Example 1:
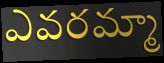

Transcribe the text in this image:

ఎవరమ్మా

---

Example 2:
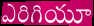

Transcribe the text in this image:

ఎరిగియూ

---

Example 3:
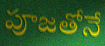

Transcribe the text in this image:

పూజతోనే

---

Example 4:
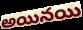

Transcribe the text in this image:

అయినయి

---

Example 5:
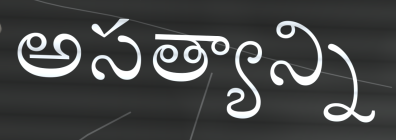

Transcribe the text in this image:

అసత్యాన్ని